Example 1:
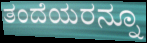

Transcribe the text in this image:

ತಂದೆಯರನ್ನೂ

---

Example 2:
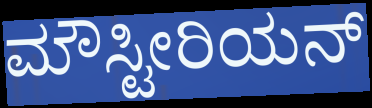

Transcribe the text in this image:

ಮೌಸ್ಟೀರಿಯನ್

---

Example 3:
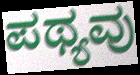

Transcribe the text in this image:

ಪಥ್ಯವು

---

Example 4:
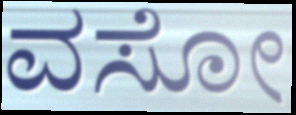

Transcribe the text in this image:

ವಸೋ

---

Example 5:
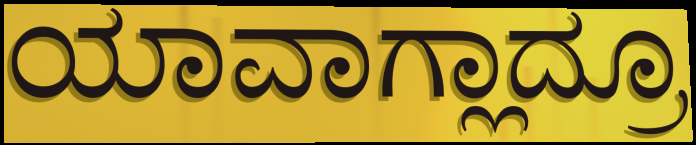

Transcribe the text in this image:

ಯಾವಾಗ್ಲಾದ್ರೂ